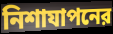
নিশাযাপনের